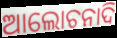
ଆଲୋଚନାଦି